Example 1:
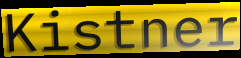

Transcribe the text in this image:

Kistner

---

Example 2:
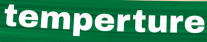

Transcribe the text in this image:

temperture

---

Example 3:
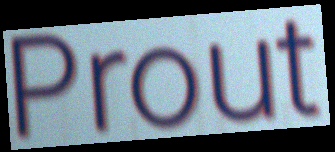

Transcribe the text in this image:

Prout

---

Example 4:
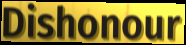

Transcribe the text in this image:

Dishonour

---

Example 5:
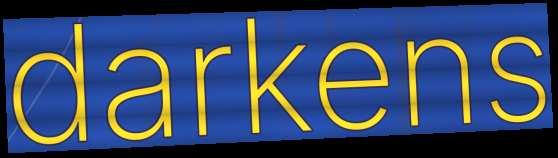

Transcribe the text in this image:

darkens